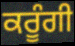
ਕਰੂੰਗੀ